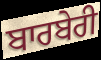
ਬਾਰਬੇਰੀ